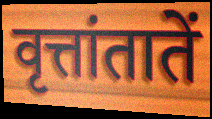
वृत्तांतातें